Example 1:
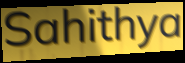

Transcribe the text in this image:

Sahithya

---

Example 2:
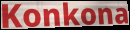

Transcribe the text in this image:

Konkona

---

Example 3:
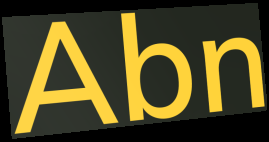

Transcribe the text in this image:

Abn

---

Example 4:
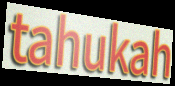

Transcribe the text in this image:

tahukah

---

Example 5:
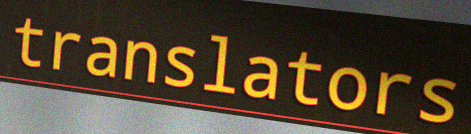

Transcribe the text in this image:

translators